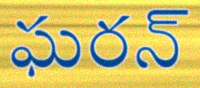
ఘరన్